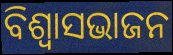
ବିଶ୍ୱାସଭାଜନ